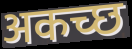
अकच्छ